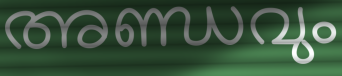
അണ്ഡവും